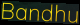
Bandhu